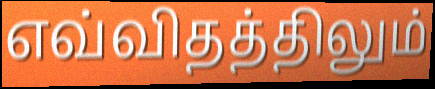
எவ்விதத்திலும்